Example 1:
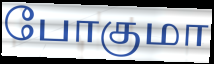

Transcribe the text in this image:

போகுமா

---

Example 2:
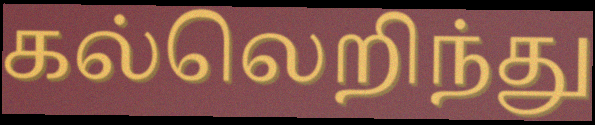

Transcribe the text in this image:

கல்லெறிந்து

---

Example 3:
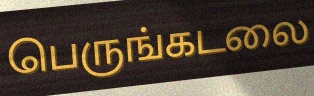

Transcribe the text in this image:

பெருங்கடலை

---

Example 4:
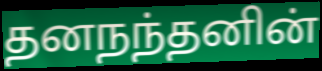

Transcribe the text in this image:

தனநந்தனின்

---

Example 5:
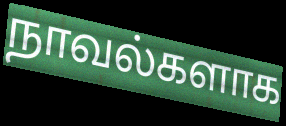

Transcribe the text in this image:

நாவல்களாக